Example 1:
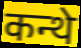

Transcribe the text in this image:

कन्थे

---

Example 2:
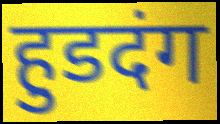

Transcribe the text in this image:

हुडदंग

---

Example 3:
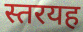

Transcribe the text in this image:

स्तरयह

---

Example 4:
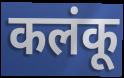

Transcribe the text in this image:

कलंकू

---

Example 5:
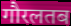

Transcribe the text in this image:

गौरलतब